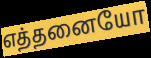
எத்தனையோ